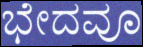
ಭೇದವೂ